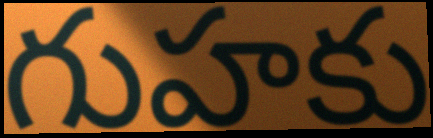
గుహకు